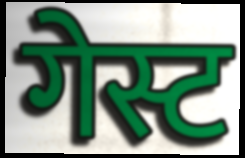
गेस्ट